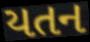
યતન